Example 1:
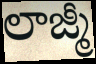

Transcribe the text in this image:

లాజ్మీ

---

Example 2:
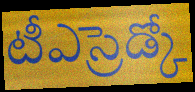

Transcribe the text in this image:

టీఎస్రెడ్కో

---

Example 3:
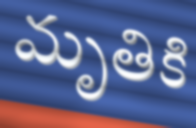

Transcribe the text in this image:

మృతికి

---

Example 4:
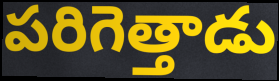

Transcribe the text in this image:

పరిగెత్తాడు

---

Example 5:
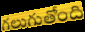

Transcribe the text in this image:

గలుగుతోంది